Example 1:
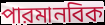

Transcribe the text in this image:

পারমানবিক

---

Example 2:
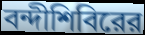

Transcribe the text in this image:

বন্দীশিবিরের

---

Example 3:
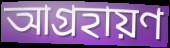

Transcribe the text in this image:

আগ্রহায়ণ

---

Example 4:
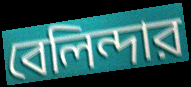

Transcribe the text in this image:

বেলিন্দার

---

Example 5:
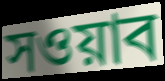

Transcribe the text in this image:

সওয়াব